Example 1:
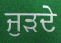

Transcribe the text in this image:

ਜੁੜਦੇ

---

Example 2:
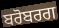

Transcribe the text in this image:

ਬਰੋਬਰਗ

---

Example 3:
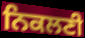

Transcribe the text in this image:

ਨਿਕਲਣੀ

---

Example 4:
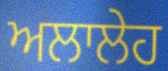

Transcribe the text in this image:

ਅਲਾਲੇਹ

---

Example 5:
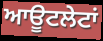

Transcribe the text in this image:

ਆਊਟਲੇਟਾਂ